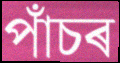
পাঁচৰ